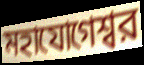
মহাযোগেশ্বর